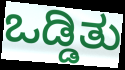
ಒಡ್ಡಿತು